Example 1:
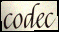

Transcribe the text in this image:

codec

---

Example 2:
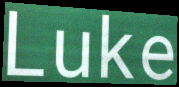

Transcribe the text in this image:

Luke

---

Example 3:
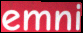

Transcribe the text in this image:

emni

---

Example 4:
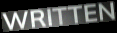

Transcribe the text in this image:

WRITTEN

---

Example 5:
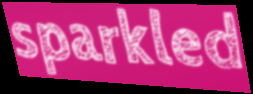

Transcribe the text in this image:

sparkled